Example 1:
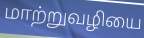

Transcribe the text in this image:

மாற்றுவழியை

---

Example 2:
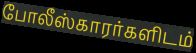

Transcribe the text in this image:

போலீஸ்காரர்களிடம்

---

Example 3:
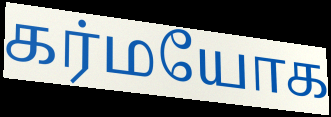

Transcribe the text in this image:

கர்மயோக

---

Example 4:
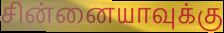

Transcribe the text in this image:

சின்னையாவுக்கு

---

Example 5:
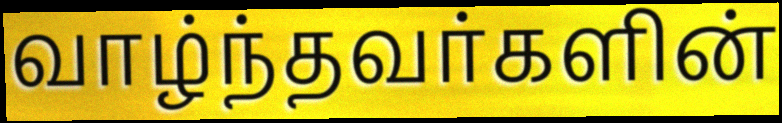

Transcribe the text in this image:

வாழ்ந்தவர்களின்